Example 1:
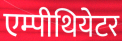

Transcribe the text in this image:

एम्पीथियेटर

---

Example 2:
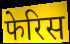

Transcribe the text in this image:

फेरिस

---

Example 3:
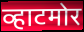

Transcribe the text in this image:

व्हाटमोर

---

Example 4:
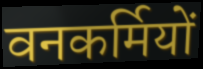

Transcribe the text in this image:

वनकर्मियों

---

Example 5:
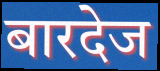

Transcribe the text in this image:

बारदेज